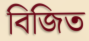
বিজিত